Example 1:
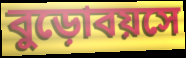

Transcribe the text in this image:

বুড়োবয়সে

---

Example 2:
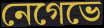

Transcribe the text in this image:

নেগেভে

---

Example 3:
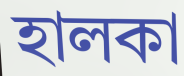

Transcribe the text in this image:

হালকা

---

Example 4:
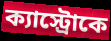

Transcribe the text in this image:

ক্যাস্ট্রোকে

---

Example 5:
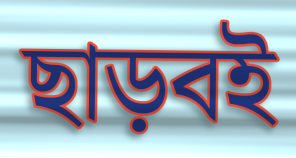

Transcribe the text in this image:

ছাড়বই